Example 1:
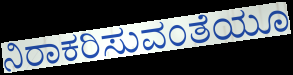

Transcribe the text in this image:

ನಿರಾಕರಿಸುವಂತೆಯೂ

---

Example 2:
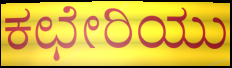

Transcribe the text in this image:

ಕಛೇರಿಯು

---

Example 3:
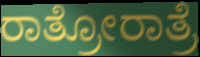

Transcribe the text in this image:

ರಾತ್ರೋರಾತ್ರೆ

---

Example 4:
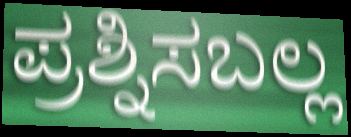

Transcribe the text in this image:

ಪ್ರಶ್ನಿಸಬಲ್ಲ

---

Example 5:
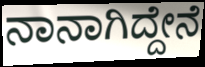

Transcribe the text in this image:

ನಾನಾಗಿದ್ದೇನೆ